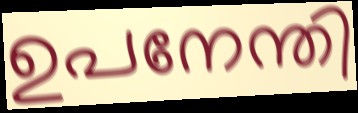
ഉപനേന്തി